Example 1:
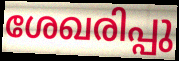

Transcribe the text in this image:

ശേഖരിപ്പു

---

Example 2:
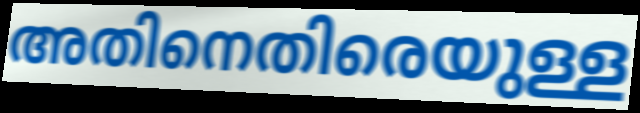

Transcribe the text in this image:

അതിനെതിരെയുള്ള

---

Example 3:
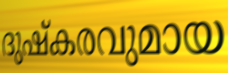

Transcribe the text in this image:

ദുഷ്കരവുമായ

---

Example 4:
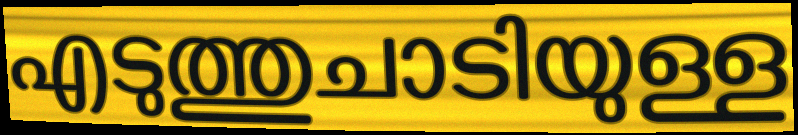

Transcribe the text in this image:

എടുത്തുചാടിയുള്ള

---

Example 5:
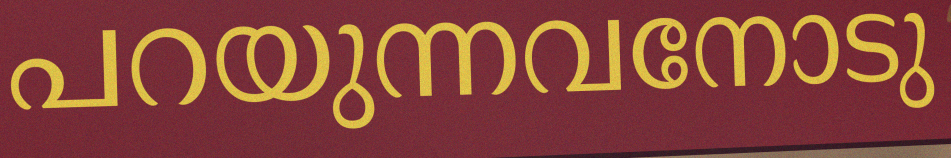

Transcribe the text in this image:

പറയുന്നവനോടു